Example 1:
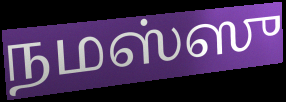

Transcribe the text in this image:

நமஸ்ஸு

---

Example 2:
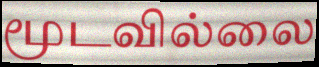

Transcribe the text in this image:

மூடவில்லை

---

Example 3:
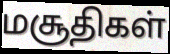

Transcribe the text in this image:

மசூதிகள்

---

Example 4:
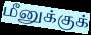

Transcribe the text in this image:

மீனுக்குக்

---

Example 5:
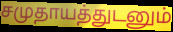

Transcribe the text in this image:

சமுதாயத்துடனும்